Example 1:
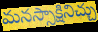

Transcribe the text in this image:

మనస్సాక్షినిచ్చు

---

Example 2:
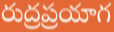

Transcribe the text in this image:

రుద్రప్రయాగ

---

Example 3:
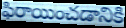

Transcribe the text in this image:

ఫిరాయించడానికి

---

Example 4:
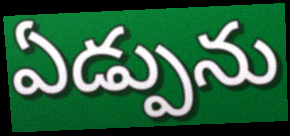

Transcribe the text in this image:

ఏడ్పును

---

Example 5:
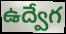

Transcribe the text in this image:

ఉద్వేగ